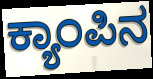
ಕ್ಯಾಂಪಿನ